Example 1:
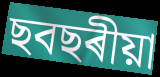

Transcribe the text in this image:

ছবছৰীয়া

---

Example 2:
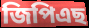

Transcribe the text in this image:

জিপিএছ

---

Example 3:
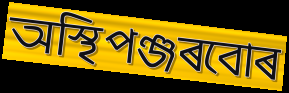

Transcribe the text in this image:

অস্থিপঞ্জৰবোৰ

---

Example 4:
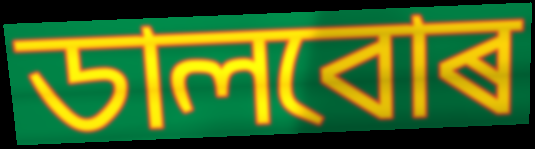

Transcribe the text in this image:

ডালবোৰ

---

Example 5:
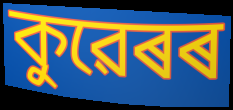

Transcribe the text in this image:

কুৱেৰৰ